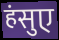
हंसुए